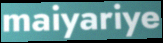
maiyariye